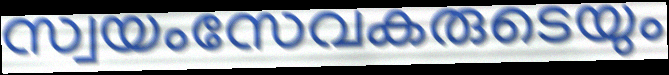
സ്വയംസേവകരുടെയും